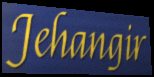
Jehangir